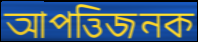
আপত্তিজনক